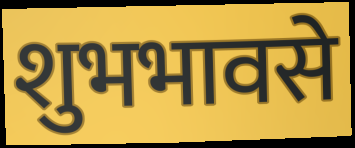
शुभभावसे